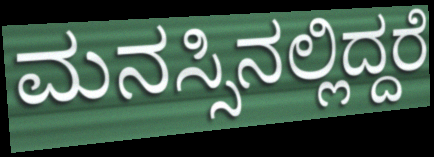
ಮನಸ್ಸಿನಲ್ಲಿದ್ದರೆ